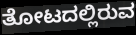
ತೋಟದಲ್ಲಿರುವ